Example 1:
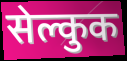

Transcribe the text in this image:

सेल्कुक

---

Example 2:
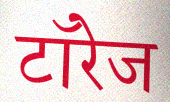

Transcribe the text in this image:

टॉरेज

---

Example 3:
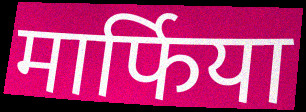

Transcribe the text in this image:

मार्फिया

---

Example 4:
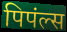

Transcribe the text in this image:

पिपंल्स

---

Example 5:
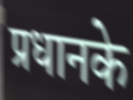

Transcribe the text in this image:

प्रधानके